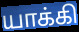
யாக்கி